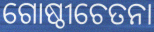
ଗୋଷ୍ଠୀଚେତନା